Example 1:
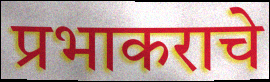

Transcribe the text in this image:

प्रभाकराचे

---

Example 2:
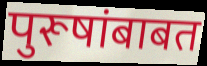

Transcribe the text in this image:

पुरूषांबाबत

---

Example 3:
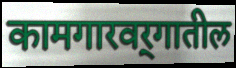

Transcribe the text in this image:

कामगारवर्गातील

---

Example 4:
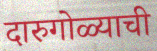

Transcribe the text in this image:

दारुगोळ्याची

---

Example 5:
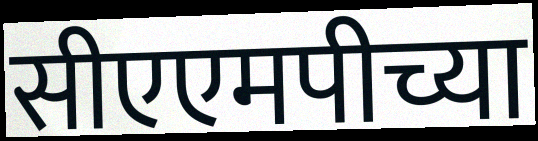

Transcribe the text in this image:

सीएएमपीच्या